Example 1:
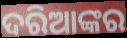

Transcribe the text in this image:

ଦରିଆଙ୍କର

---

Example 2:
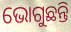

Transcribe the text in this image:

ଭୋଗୁଛନ୍ତି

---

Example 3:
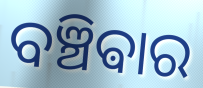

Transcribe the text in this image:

ବଞ୍ଚିଵାର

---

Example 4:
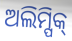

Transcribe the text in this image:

ଅଲିମ୍ପିକ୍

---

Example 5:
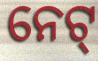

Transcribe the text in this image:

ନେଟ୍